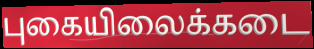
புகையிலைக்கடை